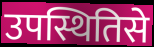
उपस्थितिसे